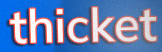
thicket